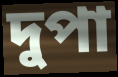
দুপা